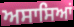
ਅਸਾਸਿਆਂ